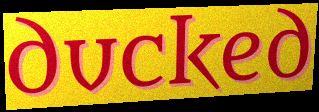
ducked